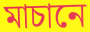
মাচানে